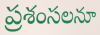
ప్రశంసలనూ